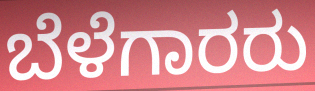
ಬೆಳೆಗಾರರು